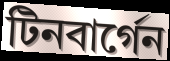
টিনবার্গেন